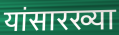
यांसारख्या